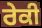
ਰੇਕੀ